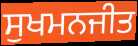
ਸੁਖਮਨਜੀਤ